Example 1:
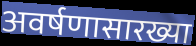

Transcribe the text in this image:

अवर्षणासारख्या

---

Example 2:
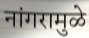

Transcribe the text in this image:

नांगरामुळे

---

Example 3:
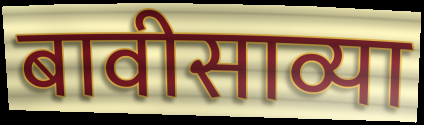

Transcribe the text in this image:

बावीसाव्या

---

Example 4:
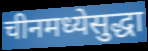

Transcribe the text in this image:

चीनमध्येसुद्धा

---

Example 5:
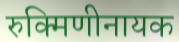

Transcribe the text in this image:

रुक्मिणीनायक